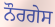
ਨੌਰਗੇਸ